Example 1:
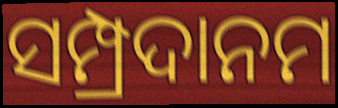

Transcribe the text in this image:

ସମ୍ପ୍ରଦାନମ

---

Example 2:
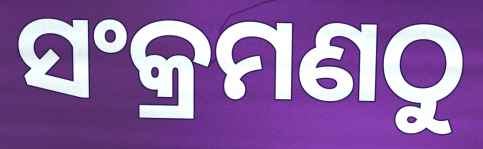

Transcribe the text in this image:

ସଂକ୍ରମଣଠୁ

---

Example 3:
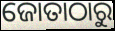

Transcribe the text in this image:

ଜୋତାଠାରୁ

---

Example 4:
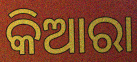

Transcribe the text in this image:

କିଆରା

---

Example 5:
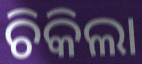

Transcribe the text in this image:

ଚିକିଲା